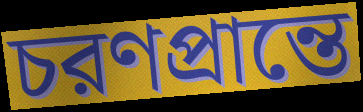
চরণপ্রান্তে